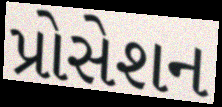
પ્રોસેશન